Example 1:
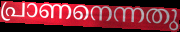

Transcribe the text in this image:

പ്രാണനെന്നതു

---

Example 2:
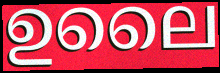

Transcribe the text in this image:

ഉലൈ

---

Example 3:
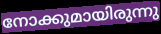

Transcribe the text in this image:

നോക്കുമായിരുന്നു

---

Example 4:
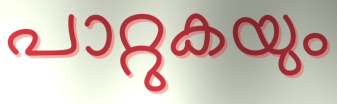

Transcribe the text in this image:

പാറ്റുകയും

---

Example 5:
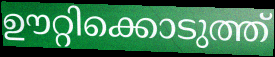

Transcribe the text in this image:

ഊറ്റിക്കൊടുത്ത്